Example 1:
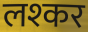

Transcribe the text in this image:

लश्‍कर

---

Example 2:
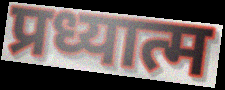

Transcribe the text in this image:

प्रध्यात्म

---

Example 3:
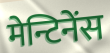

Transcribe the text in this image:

मेन्टिनेंस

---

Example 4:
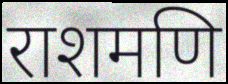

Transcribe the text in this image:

राशमणि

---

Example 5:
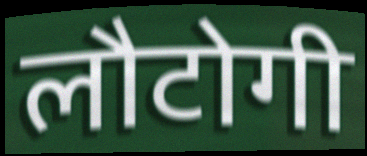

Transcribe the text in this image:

लौटोगी